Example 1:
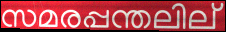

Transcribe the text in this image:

സമരപ്പന്തലില്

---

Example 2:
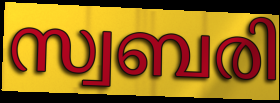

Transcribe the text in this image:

സ്വബരി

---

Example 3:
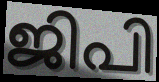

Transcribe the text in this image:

ജിപി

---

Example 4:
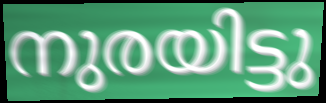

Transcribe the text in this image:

നുരയിട്ടു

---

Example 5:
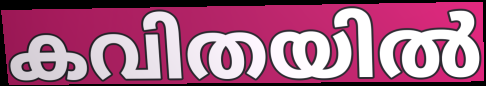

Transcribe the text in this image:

കവിതയിൽ